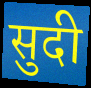
सुदी